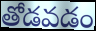
తోడవడం